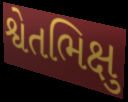
શ્વેતભિક્ષુ